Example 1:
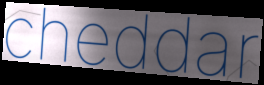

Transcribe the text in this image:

cheddar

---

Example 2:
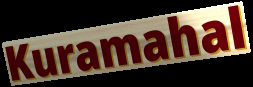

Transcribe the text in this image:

Kuramahal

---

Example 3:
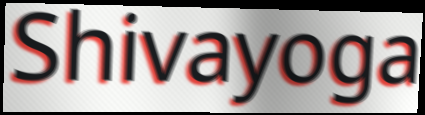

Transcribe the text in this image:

Shivayoga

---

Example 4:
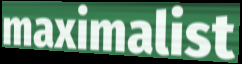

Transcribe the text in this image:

maximalist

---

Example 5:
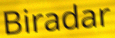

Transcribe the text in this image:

Biradar